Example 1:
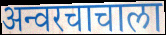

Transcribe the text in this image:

अन्वरचाचाला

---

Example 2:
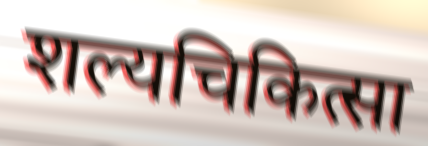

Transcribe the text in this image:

शल्‍यचिकित्‍सा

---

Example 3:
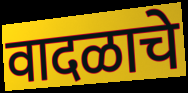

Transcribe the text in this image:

वादळाचे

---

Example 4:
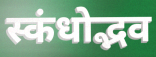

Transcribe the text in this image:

स्कंधोद्भव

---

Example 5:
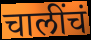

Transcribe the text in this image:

चालींचं